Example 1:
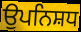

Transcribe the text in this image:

ਉਪਨਿਸ਼ਧ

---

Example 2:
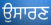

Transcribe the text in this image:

ਉਸਾਰਣ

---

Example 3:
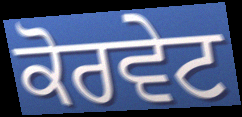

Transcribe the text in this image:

ਕੋਰਵੇਟ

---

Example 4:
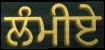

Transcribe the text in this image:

ਲੰਮੀਏ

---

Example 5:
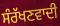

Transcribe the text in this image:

ਸੰਰੱਖਣਵਾਦੀ